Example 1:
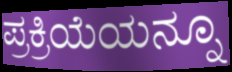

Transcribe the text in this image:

ಪ್ರಕ್ರಿಯೆಯನ್ನೂ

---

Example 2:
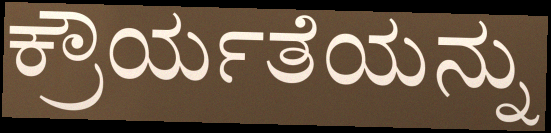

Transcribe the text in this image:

ಕ್ರೌರ್ಯತೆಯನ್ನು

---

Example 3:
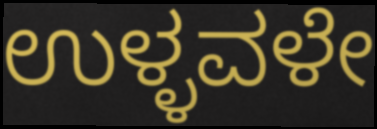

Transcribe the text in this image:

ಉಳ್ಳವಳೇ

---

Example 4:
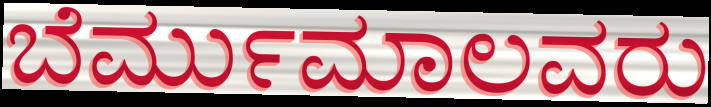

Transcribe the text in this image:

ಬೆರ್ಮುಮಾಲವರು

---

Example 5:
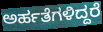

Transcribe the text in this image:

ಅರ್ಹತೆಗಳಿದ್ದರೆ